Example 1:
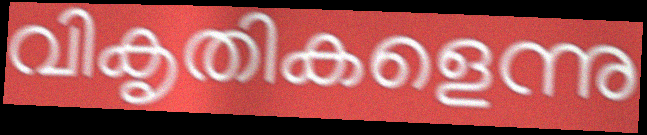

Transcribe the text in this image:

വികൃതികളെന്നു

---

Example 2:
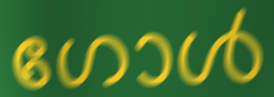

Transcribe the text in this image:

ഗോൾ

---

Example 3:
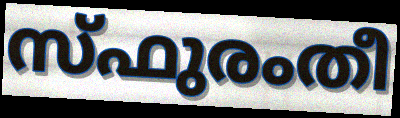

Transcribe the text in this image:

സ്ഫുരംതീ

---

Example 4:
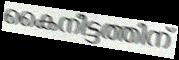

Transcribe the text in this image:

കൈനീട്ടത്തിന്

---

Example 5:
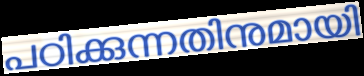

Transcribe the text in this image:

പഠിക്കുന്നതിനുമായി